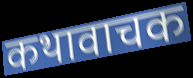
कथावाचक